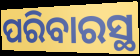
ପରିବାରସ୍ଥ